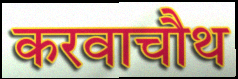
करवाचौथ